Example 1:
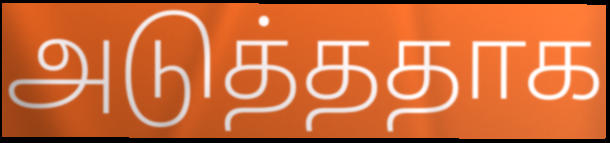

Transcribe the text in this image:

அடுத்ததாக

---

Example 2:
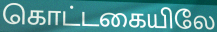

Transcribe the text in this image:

கொட்டகையிலே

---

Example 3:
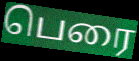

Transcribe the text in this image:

பெரை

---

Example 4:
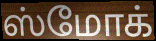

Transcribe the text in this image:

ஸ்மோக்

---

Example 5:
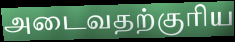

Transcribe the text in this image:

அடைவதற்குரிய